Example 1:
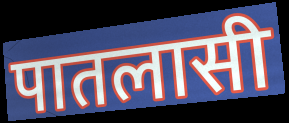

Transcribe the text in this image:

पातलासी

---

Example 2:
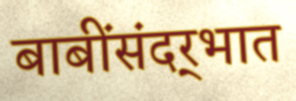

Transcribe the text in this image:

बाबींसंदर्भात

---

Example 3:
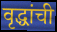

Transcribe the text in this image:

वृद्धांची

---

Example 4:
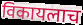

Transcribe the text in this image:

विकायलाच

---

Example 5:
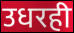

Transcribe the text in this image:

उधरही